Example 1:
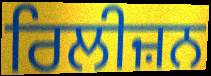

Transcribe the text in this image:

ਰਿਲੀਜ਼ਨ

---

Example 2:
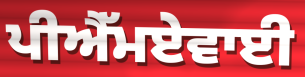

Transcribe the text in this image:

ਪੀਐੱਮਏਵਾਈ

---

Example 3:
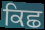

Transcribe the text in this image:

ਕਿਛ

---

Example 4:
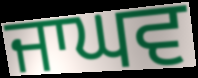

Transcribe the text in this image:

ਜਾਘਵ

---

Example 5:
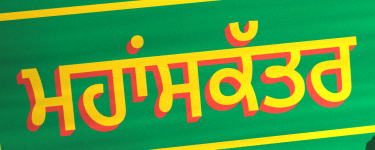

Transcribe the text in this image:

ਮਹਾਂਸਕੱਤਰ